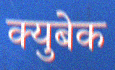
क्युबेक